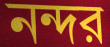
নন্দর